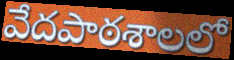
వేదపాఠశాలలో